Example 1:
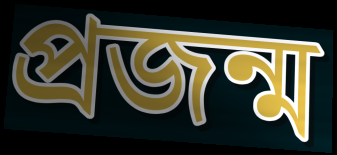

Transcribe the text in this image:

প্রজন্ম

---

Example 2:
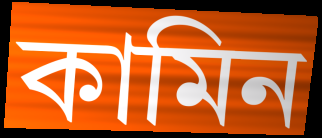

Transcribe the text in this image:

কামিন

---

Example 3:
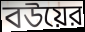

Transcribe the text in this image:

বউয়ের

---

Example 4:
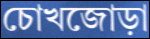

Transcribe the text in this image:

চোখজোড়া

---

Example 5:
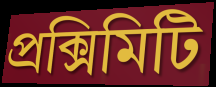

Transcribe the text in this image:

প্রক্সিমিটি